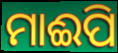
ମାଈପି